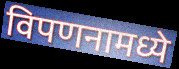
विपणनामध्ये